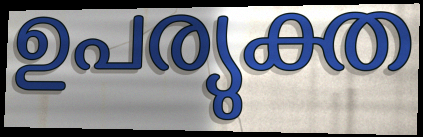
ഉപര്യുക്ത